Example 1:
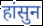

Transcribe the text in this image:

हांसुन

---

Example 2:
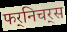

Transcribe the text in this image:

फर्निचर्स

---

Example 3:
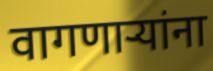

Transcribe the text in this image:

वागणार्‍यांना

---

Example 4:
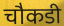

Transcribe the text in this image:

चौकडी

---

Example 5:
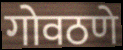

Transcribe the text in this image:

गोवठणे